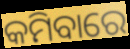
କମିବାରେ